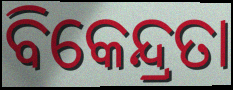
ବିକେନ୍ଦ୍ରତା